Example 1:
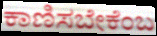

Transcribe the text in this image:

ಕಾಣಿಸಬೇಕೆಂಬ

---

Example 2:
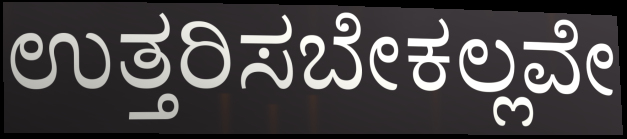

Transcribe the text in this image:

ಉತ್ತರಿಸಬೇಕಲ್ಲವೇ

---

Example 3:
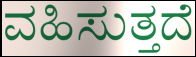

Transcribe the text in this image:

ವಹಿಸುತ್ತದೆ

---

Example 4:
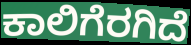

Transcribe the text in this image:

ಕಾಲಿಗೆರಗಿದೆ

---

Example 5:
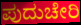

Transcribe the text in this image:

ಪುದುಚೇರಿ